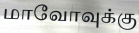
மாவோவுக்கு